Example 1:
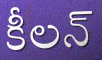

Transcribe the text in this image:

కీలన్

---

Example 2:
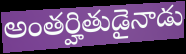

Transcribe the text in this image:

అంతర్హితుడైనాడు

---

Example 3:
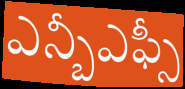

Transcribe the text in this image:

ఎన్బీఎఫ్సీ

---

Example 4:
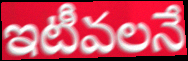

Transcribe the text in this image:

ఇటీవలనే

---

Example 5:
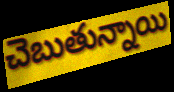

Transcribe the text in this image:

చెబుతున్నాయి